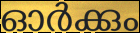
ഓർക്കും